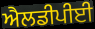
ਐਲਡੀਪੀਈ